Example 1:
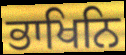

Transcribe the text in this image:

ਭਾਖਿਨਿ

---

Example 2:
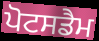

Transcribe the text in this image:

ਪੋਟਸਡੈਮ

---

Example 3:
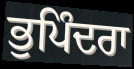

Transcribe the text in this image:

ਭੁਪਿੰਦਰਾ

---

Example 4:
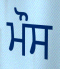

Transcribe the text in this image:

ਮੌਸ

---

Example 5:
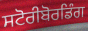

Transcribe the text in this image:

ਸਟੋਰੀਬੋਰਡਿੰਗ